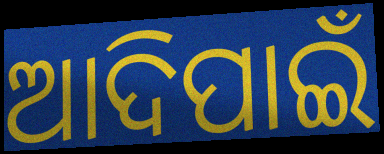
ଆଦିପାଇଁ